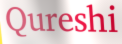
Qureshi